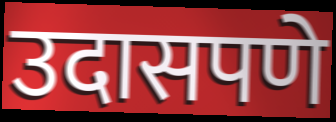
उदासपणे